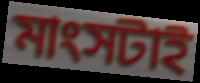
মাংসটাই